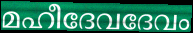
മഹീദേവദേവം